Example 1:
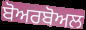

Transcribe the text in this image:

ਬੋਅਰਬੋਅਲ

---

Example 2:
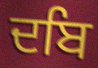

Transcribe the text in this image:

ਦਬਿ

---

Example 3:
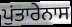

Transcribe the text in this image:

ਪੁਂਤਾਰੇਨਾਸ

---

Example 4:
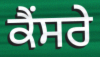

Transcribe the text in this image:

ਕੈਂਸਰੇ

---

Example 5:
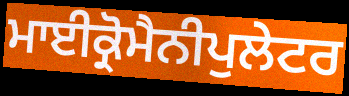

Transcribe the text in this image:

ਮਾਈਕ੍ਰੋਮੈਨੀਪੁਲੇਟਰ